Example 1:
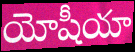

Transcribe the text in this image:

యోషీయా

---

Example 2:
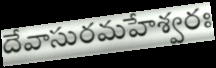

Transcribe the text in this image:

దేవాసురమహేశ్వరః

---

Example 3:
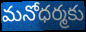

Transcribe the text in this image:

మనోధర్మకు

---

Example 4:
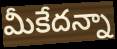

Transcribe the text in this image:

మీకేదన్నా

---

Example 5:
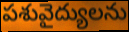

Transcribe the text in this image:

పశువైద్యులను